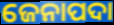
ଜେନାପଦା